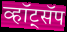
व्हॉट्सॅप